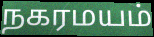
நகரமயம்